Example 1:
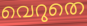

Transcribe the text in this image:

വെറുതെ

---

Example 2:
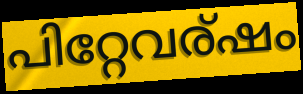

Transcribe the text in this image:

പിറ്റേവര്ഷം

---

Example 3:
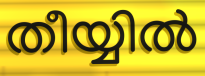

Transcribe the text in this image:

തീയ്യിൽ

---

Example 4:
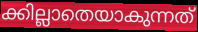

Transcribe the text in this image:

ക്കില്ലാതെയാകുന്നത്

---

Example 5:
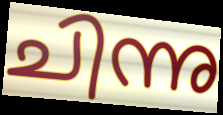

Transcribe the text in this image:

ചിന്നു